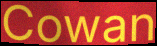
Cowan